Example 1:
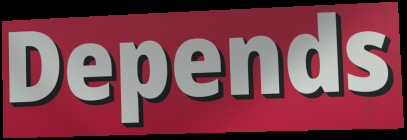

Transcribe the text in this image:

Depends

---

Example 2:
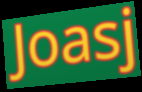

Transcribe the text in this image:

Joasj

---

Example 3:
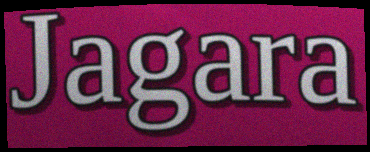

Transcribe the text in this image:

Jagara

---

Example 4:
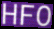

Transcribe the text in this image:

HFO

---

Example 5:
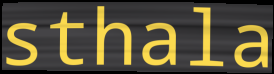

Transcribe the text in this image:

sthala